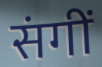
संगीं